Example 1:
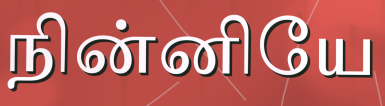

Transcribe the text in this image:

நின்னியே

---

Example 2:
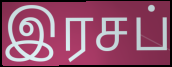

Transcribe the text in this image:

இரசப்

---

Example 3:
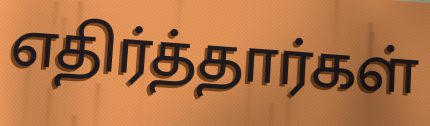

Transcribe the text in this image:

எதிர்த்தார்கள்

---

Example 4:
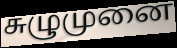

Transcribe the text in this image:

சுழுமுனை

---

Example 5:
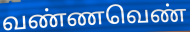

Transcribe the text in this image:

வண்ணவெண்